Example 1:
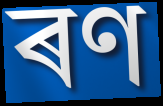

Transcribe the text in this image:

ৰণ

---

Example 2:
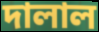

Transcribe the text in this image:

দালাল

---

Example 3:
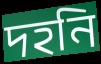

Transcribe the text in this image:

দহনি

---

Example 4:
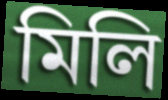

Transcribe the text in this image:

মিলি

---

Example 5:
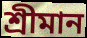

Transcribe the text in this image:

শ্ৰীমান